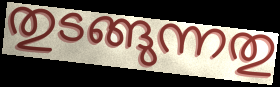
തുടങ്ങുന്നതു